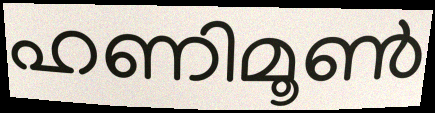
ഹണിമൂൺ